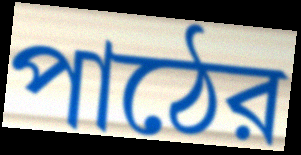
পাঠের